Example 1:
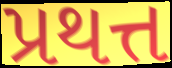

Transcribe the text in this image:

પ્રથત્ત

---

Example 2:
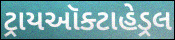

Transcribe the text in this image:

ટ્રાયઑક્ટાહેડ્રલ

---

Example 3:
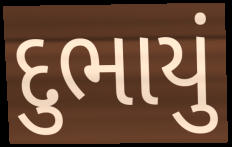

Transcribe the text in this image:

દુભાયું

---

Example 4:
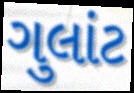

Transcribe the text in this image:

ગુલાંટ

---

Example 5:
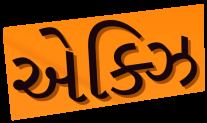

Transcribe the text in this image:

એક્ઝિ